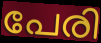
പേരി